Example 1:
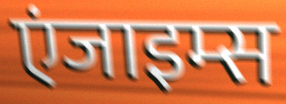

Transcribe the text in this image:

एंजाइम्‍स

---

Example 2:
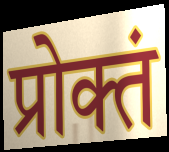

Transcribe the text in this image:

प्रोक्तं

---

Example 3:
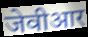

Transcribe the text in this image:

जेवीआर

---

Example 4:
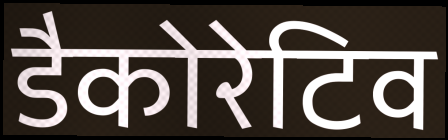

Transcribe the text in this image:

डैकोरेटिव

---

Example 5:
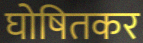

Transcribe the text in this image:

घोषितकर